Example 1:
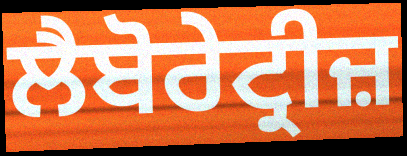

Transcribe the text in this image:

ਲੈਬੋਰੇਟ੍ਰੀਜ਼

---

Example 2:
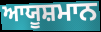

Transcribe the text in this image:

ਆਯੂਸ਼ਮਾਨ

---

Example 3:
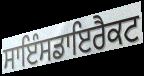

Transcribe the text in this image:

ਸਾਇੰਸਡਾਇਰੈਕਟ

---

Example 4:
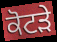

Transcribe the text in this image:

ਕੋਟੜੇ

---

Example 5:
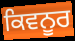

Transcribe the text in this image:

ਕਿਵਨੂਰ